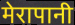
मेरापानी